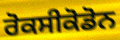
ਰੋਕਸੀਕੋਡੋਨ